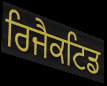
ਰਿਜੈਕਟਿਡ